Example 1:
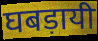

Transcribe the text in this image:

घबड़ायी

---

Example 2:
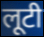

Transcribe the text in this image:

लूटी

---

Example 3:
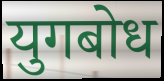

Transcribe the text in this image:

युगबोध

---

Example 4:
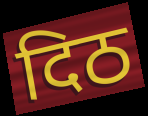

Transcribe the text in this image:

दिठ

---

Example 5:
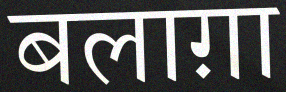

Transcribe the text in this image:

बलाग़ा